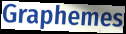
Graphemes